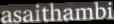
asaithambi